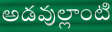
అడవుల్లాంటి